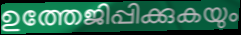
ഉത്തേജിപ്പിക്കുകയും